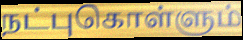
நட்புகொள்ளும்